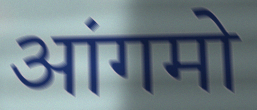
आंगमो